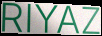
RIYAZ